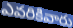
ఎవరికివారు